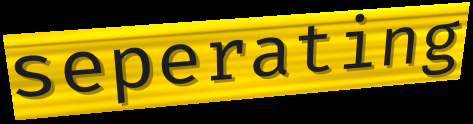
seperating